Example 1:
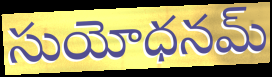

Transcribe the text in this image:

సుయోధనమ్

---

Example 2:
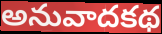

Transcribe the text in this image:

అనువాదకథ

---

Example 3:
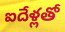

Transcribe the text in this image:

ఐదేళ్లతో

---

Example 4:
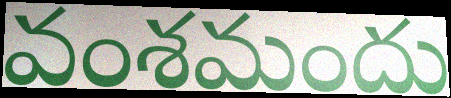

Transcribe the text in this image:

వంశమందు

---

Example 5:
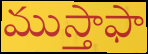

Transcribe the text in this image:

ముస్తాఫా